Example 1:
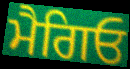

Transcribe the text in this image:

ਮੈਗਿਓ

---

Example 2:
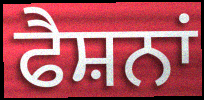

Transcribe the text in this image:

ਫੈਸ਼ਨਾਂ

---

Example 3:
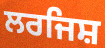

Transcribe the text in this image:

ਲਰਜਿਸ਼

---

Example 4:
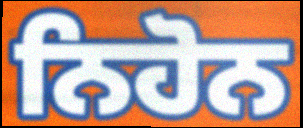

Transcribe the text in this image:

ਨਿਹੋਨ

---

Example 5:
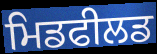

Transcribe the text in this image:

ਮਿਡਫੀਲਡ